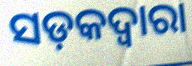
ସଡ଼କଦ୍ୱାରା